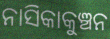
ନାସିକାକୁଞ୍ଚନ